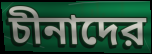
চীনাদের